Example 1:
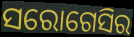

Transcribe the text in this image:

ସରୋଗେସିର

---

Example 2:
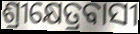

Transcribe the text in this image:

ଶ୍ରୀକ୍ଷେତ୍ରବାସୀ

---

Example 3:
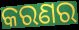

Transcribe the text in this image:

କରଣର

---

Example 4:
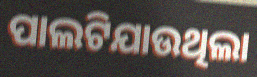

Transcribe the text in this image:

ପାଲଟିଯାଉଥିଲା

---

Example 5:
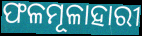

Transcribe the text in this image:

ଫଳମୂଳାହାରୀ